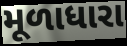
મૂળાધારા